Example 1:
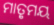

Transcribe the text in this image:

ମାତୃମୟ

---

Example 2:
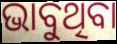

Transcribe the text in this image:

ଭାବୁଥିବା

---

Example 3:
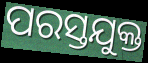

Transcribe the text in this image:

ପରସ୍ତଯୁକ୍ତ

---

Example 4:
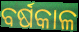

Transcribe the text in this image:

ବର୍ଷକାଳ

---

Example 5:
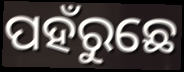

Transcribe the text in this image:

ପହଁରୁଛେ